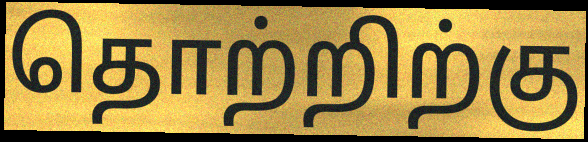
தொற்றிற்கு